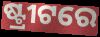
ଷ୍ଟ୍ରୀଟରେ